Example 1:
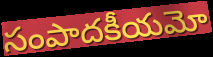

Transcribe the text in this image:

సంపాదకీయమో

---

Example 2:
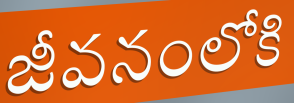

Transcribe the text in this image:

జీవనంలోకి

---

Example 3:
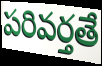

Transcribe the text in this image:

పరివర్తతే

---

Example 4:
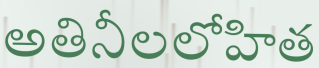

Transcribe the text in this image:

అతినీలలోహిత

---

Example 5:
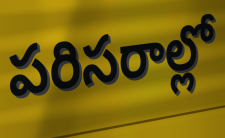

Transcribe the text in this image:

పరిసరాల్లో